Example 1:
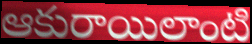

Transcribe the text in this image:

ఆకురాయిలాంటి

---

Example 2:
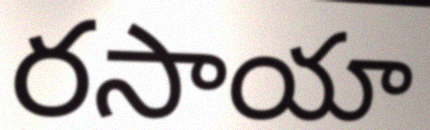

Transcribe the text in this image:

రసాయా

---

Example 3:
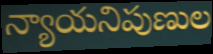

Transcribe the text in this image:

న్యాయనిపుణుల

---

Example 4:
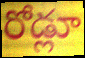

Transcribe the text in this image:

రోడ్లూ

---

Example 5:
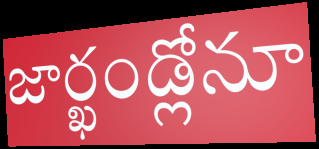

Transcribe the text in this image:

జార్ఖండ్లోనూ